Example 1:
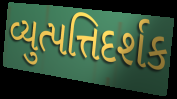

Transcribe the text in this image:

વ્યુત્પત્તિદર્શક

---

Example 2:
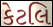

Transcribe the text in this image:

કેટલિ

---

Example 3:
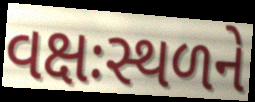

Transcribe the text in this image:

વક્ષઃસ્થળને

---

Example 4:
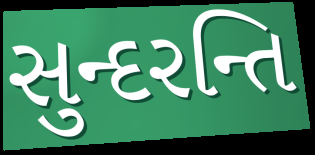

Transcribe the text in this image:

સુન્દરન્તિ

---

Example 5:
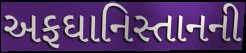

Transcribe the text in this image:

અફઘાનિસ્તાનની